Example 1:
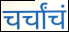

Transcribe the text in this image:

चर्चांचं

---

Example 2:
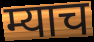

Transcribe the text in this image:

म्याच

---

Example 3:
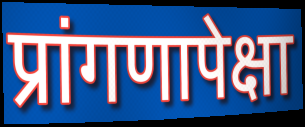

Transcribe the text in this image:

प्रांगणापेक्षा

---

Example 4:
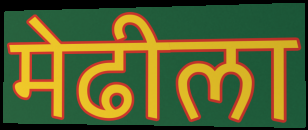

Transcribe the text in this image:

मेढीला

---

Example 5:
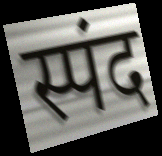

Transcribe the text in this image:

स्पंद